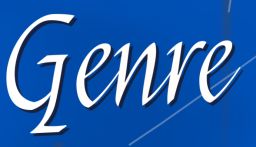
Genre